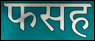
फसह